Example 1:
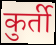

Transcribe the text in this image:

कुर्ती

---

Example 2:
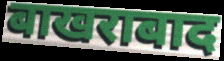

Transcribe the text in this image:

बाखराबाद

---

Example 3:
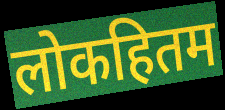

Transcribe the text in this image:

लोकहितम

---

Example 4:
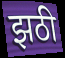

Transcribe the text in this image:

झठी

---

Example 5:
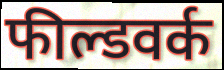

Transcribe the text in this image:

फील्डवर्क